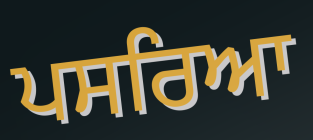
ਪਸਰਿਆ